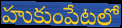
హుకుంపేటలో